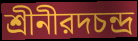
শ্রীনীরদচন্দ্র